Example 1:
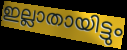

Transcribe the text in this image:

ഇല്ലാതായിട്ടും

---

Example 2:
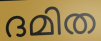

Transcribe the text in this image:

ദമിത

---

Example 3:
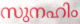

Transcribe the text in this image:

സുനഹിം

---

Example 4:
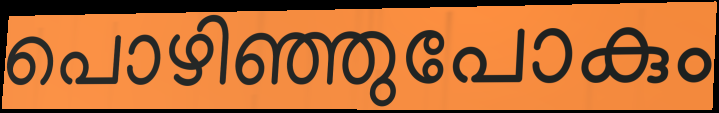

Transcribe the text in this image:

പൊഴിഞ്ഞുപോകും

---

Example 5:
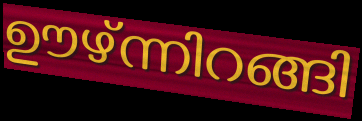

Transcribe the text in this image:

ഊഴ്ന്നിറങ്ങി